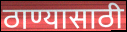
ठाण्यासाठी